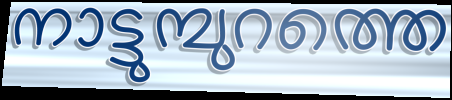
നാട്ടുമ്പുറത്തെ